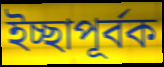
ইচ্ছাপূর্বক